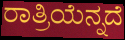
ರಾತ್ರಿಯೆನ್ನದೆ